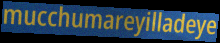
mucchumareyilladeye